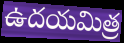
ఉదయమిత్ర